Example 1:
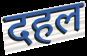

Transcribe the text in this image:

दहल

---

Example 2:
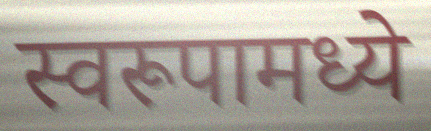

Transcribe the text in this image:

स्वरूपामध्ये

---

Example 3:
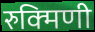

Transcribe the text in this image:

रुक्‍मिणी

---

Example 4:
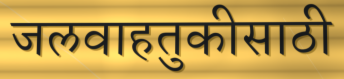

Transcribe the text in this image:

जलवाहतुकीसाठी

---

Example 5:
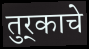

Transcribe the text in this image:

तुर्काचे